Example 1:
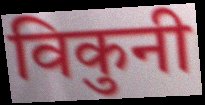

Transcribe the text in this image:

विकुनी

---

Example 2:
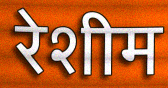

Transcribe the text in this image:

रेशीम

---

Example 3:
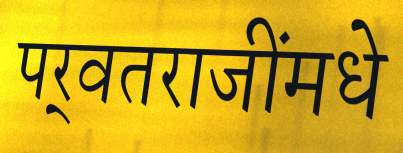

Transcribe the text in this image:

पर्वतराजींमधे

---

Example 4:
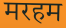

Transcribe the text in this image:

मरहम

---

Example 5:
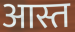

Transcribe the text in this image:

आस्त